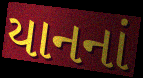
યાનનાં